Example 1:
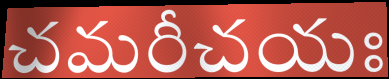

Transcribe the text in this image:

చమరీచయః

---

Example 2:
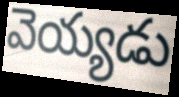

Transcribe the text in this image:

వెయ్యడు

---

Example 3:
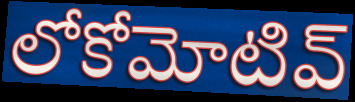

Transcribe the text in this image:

లోకోమోటివ్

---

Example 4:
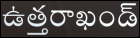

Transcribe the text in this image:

ఉత్తరాఖండ్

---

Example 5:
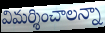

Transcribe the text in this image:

విమర్శించాలన్నా